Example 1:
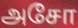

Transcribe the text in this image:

அசோ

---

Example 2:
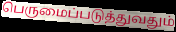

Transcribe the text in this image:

பெருமைப்படுத்துவதும்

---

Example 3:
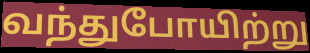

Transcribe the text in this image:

வந்துபோயிற்று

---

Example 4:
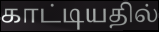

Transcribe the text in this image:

காட்டியதில்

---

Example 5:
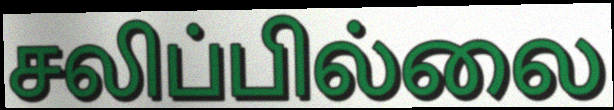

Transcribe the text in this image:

சலிப்பில்லை